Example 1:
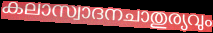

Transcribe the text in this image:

കലാസ്വാദനചാതുര്യവും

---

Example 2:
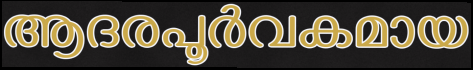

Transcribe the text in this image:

ആദരപൂർവകമായ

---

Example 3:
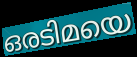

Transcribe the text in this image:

ഒരടിമയെ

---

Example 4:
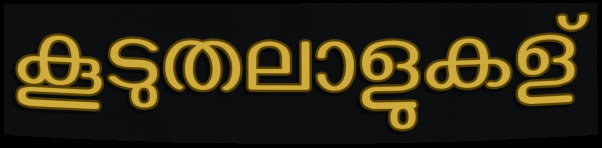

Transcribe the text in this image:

കൂടുതലാളുകള്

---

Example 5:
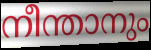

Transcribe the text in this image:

നീന്താനും